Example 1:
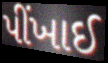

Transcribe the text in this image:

પીંખાઈ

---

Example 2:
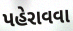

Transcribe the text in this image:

પહેરાવવા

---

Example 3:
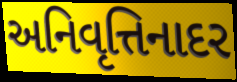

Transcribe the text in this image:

અનિવૃત્તિનાદર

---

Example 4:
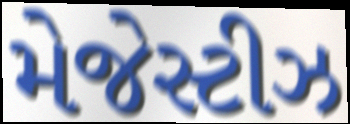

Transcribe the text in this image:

મેજેસ્ટીઝ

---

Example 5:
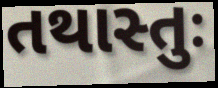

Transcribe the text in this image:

તથાસ્તુઃ